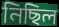
নিছিল